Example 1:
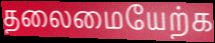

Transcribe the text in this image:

தலைமையேற்க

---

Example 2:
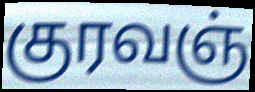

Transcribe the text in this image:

குரவஞ்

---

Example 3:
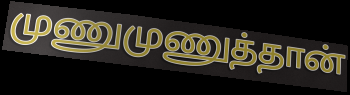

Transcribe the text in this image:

முணுமுணுத்தான்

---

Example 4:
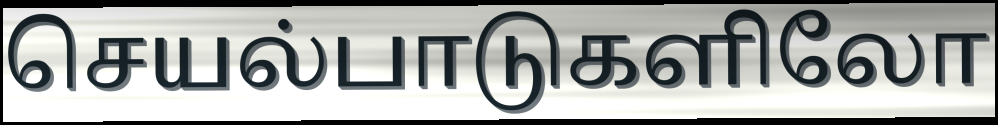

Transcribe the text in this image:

செயல்பாடுகளிலோ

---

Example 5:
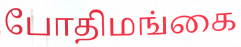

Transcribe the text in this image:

போதிமங்கை